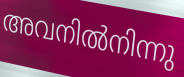
അവനിൽനിന്നു